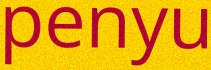
penyu